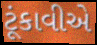
ટૂંકાવીએ